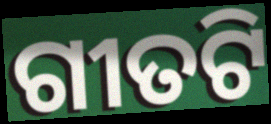
ଗୀତଟି